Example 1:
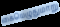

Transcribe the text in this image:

கையெழுதுமாறு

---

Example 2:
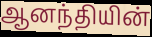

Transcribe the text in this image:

ஆனந்தியின்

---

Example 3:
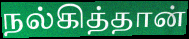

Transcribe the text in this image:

நல்கித்தான்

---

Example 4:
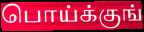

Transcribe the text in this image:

பொய்க்குங்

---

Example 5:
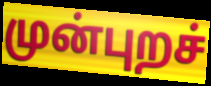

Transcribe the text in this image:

முன்புறச்